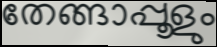
തേങ്ങാപ്പൂളും